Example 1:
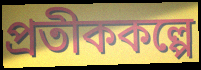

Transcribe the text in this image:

প্রতীককল্পে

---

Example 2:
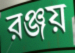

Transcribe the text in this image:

রঞ্জয়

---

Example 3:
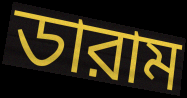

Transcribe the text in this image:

ডারাম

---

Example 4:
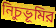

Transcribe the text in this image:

নিচুভূমির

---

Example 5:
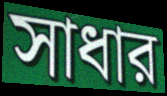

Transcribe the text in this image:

সাধার